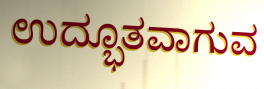
ಉದ್ಭೂತವಾಗುವ